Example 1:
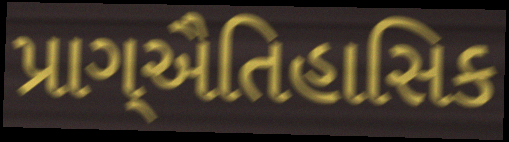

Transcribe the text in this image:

પ્રાગ્ઐતિહાસિક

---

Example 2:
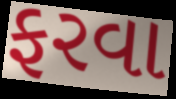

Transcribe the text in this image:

ફરવા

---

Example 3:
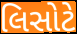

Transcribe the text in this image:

લિસોટે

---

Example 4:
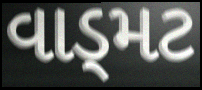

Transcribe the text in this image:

વાડ્મટ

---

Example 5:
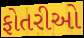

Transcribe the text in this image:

ફોતરીઓ